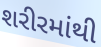
શરીરમાંથી